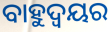
ବାହୁଦ୍ୱୟର